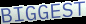
BIGGEST